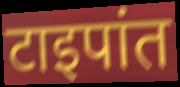
टाइपांत